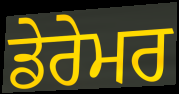
ਡੇਰੇਮਰ